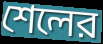
শেলের